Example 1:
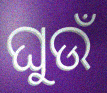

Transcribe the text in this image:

ଘୁଉଁ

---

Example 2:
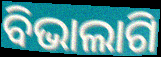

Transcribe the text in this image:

ବିଭାଲାଗି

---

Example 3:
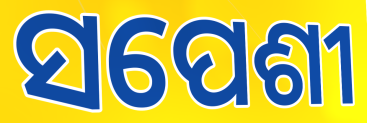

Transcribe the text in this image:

ସପେଶୀ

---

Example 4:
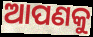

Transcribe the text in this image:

ଆପଣକୁ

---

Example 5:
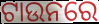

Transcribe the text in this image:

ଟାଉନରେ